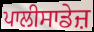
ਪਾਲੀਸਾਡੇਜ਼